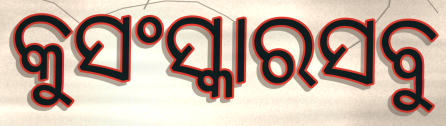
କୁସଂସ୍କାରସବୁ